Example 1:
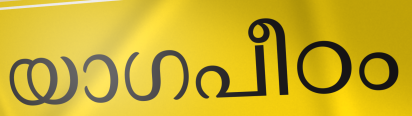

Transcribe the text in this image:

യാഗപീഠം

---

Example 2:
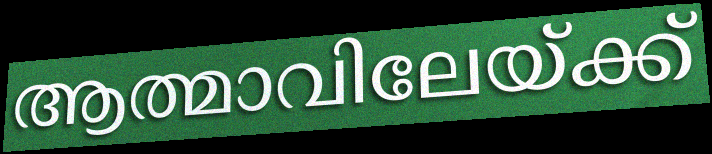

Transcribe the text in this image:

ആത്മാവിലേയ്ക്ക്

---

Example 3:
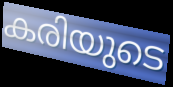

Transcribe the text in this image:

കരിയുടെ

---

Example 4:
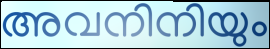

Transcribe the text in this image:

അവനിനിയും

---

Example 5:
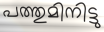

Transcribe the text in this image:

പത്തുമിനിട്ടു